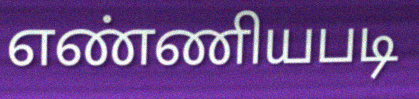
எண்ணியபடி